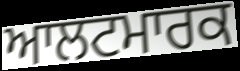
ਆਲਟਮਾਰਕ